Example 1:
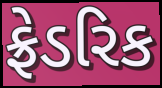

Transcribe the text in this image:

ફ્રેડરિક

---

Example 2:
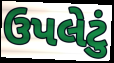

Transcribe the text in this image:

ઉપલેટું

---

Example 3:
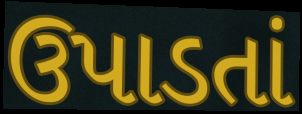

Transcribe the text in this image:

ઉપાડતાં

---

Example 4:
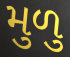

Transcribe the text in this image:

મુળુ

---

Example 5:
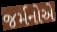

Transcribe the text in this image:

જર્મનોએ